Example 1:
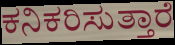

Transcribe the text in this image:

ಕನಿಕರಿಸುತ್ತಾರೆ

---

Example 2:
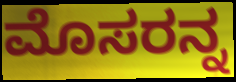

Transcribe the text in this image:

ಮೊಸರನ್ನ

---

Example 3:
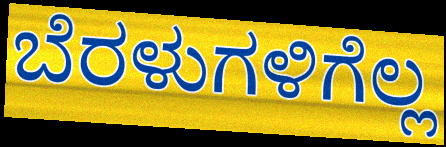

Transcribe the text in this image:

ಬೆರಳುಗಳಿಗೆಲ್ಲ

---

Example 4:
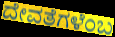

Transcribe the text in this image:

ದೇವತೆಗಳೆಂಬ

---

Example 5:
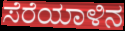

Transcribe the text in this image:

ಸೆರೆಯಾಳಿನ